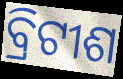
ବ୍ରିଟୀଶ